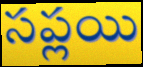
సప్లయి